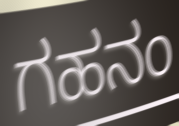
ಗಹನಂ